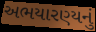
અભયારણ્યનું